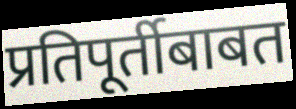
प्रतिपूर्तीबाबत